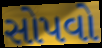
સોપવો